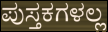
ಪುಸ್ತಕಗಳಲ್ಲ